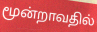
மூன்றாவதில்